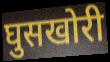
घुसखोरी